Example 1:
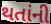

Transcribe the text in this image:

થતાંની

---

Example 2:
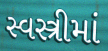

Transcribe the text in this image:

સ્વસ્ત્રીમાં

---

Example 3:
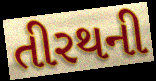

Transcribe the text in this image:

તીરથની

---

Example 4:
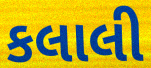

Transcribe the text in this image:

કલાલી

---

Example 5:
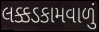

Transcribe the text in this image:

લક્કડકામવાળું